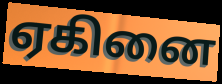
ஏகினை